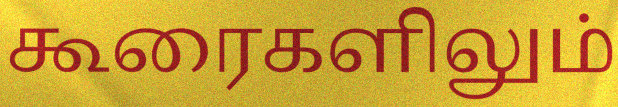
கூரைகளிலும்